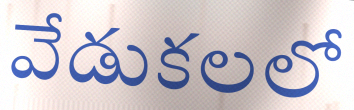
వేడుకలలో